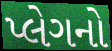
પ્લેગનો